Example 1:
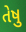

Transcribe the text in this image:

તેષુ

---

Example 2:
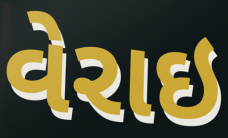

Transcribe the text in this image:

વેરાઇ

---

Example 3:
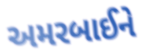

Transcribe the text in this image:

અમરબાઈને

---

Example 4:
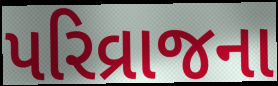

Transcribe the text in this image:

પરિવ્રાજના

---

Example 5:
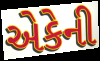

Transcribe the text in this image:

એકેની